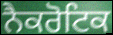
ਨੈਕਰੋਟਿਕ